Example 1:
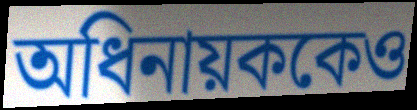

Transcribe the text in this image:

অধিনায়ককেও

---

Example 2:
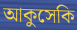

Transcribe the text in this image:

আকুসেকি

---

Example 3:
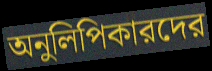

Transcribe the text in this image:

অনুলিপিকারদের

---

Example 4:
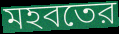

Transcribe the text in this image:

মহবতের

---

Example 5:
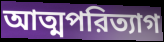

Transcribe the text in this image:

আত্মপরিত্যাগ